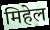
मिहेल